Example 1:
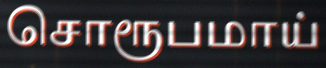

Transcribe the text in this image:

சொரூபமாய்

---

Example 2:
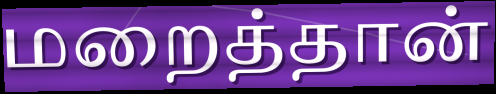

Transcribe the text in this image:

மறைத்தான்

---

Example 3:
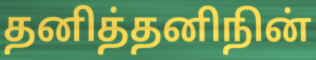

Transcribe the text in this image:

தனித்தனிநின்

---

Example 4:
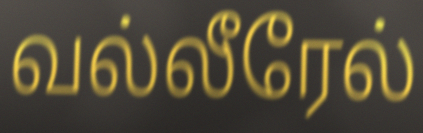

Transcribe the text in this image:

வல்லீரேல்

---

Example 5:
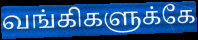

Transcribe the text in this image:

வங்கிகளுக்கே